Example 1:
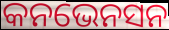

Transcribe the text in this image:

କନଭେନସନ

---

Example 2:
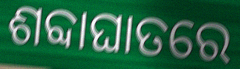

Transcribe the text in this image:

ଶବ୍ଦାଘାତରେ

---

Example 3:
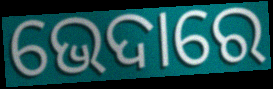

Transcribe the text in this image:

ଭେଦାରେ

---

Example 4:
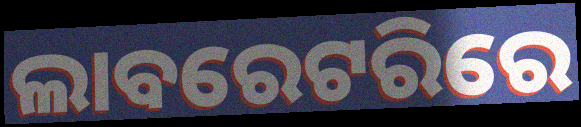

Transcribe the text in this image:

ଲାବରେଟରିରେ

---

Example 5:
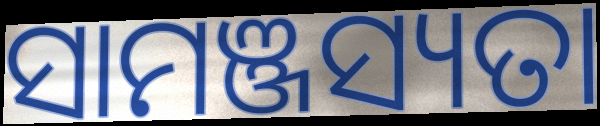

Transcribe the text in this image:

ସାମଞ୍ଜସ୍ୟତା